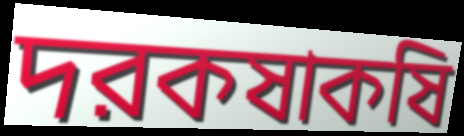
দরকষাকষি